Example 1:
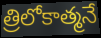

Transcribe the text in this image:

త్రిలోకాత్మనే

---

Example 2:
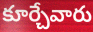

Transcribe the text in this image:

కూర్చేవారు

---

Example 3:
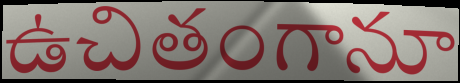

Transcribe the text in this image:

ఉచితంగానూ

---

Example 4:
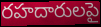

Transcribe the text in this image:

రహదారులపై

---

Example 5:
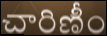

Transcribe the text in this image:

చారిణీం